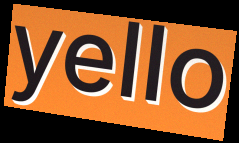
yello